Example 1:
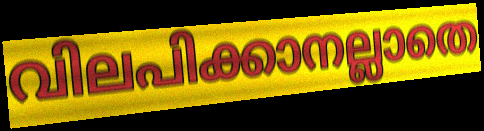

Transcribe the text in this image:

വിലപിക്കാനല്ലാതെ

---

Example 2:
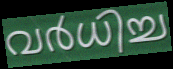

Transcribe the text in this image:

വർധിച്ച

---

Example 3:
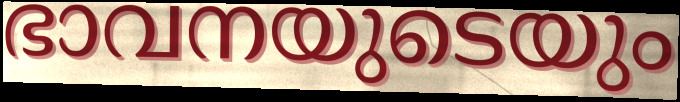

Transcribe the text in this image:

ഭാവനയുടെയും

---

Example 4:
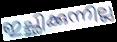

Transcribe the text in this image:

ഇച്ഛിക്കുന്നില്ല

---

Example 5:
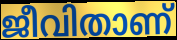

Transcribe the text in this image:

ജീവിതാണ്